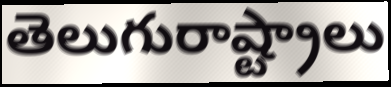
తెలుగురాష్ట్రాలు